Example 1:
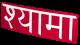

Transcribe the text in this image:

श्यामा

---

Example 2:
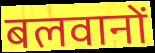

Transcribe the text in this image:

बलवानों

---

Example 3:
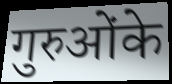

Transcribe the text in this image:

गुरुओंके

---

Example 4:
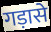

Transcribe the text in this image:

गड़ासे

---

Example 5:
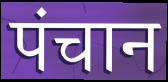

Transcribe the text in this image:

पंचान